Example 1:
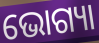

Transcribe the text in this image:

ଭୋଗ୍ୟା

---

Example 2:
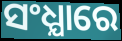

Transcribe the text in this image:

ସଂଧ୍ଯାରେ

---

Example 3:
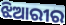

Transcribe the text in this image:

ଝିଆରୀର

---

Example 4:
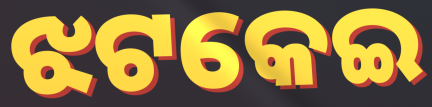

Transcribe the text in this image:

ଝଟକେଇ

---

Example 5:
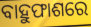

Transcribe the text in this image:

ବାହୁଫାଶରେ